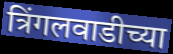
त्रिंगलवाडीच्या